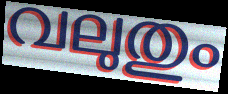
വലുതും